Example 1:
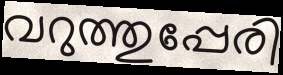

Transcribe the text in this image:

വറുത്തുപ്പേരി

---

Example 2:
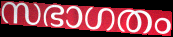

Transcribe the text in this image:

സഭാഗതം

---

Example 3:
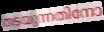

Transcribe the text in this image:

തടയുന്നതിനോ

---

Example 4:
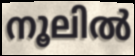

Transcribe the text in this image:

നൂലിൽ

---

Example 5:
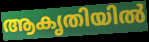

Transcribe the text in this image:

ആകൃതിയിൽ